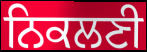
ਨਿਕਲਣੀ